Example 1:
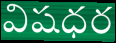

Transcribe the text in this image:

విషధర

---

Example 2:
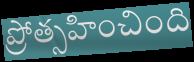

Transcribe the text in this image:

ప్రోత్సహించింది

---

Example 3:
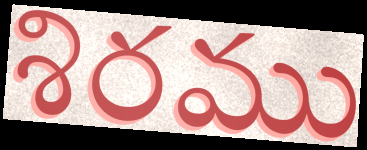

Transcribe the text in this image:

శిరము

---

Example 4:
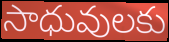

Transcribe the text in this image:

సాధువులకు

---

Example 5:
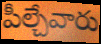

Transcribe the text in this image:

పీల్చేవారు